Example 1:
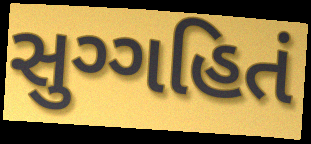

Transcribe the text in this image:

સુગ્ગહિતં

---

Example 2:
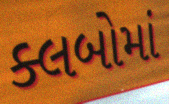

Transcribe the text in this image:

ક્લબોમાં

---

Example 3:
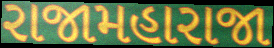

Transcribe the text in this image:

રાજામહારાજા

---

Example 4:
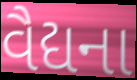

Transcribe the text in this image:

વૈદ્યના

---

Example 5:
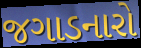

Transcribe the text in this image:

જગાડનારો